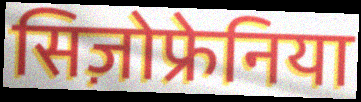
सिज़ोफ्रेनिया